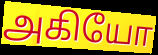
அகியோ